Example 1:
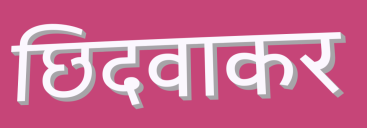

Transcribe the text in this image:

छिदवाकर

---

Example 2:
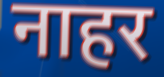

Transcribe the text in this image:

नाहर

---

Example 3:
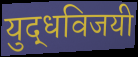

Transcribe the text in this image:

युद्धविजयी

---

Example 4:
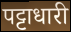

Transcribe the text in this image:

पट्टाधारी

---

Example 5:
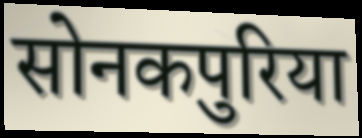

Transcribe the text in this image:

सोनकपुरिया